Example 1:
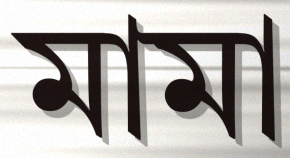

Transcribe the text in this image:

মামা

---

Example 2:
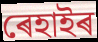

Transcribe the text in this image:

ৰেহাইৰ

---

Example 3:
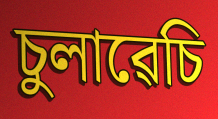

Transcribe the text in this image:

চুলাৱেচি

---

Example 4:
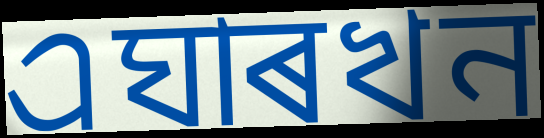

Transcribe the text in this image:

এঘাৰখন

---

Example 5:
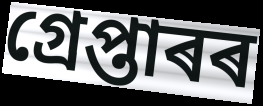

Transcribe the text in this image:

গ্ৰেপ্তাৰৰ